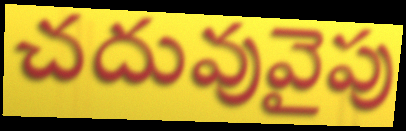
చదువువైపు